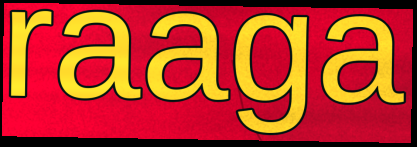
raaga